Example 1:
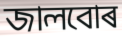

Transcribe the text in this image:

জালবোৰ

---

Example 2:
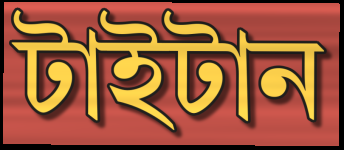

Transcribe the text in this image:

টাইটান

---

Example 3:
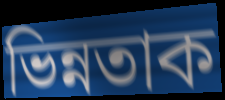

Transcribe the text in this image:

ভিন্নতাক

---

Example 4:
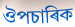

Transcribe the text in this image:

ঔপচাৰিক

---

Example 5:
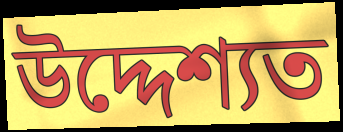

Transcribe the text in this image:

উদ্দেশ্যত